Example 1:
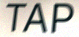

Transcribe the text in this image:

TAP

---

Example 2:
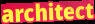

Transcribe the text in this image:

architect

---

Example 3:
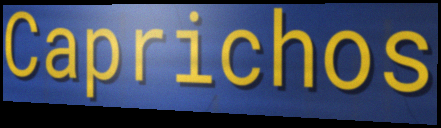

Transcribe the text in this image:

Caprichos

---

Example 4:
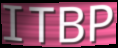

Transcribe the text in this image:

ITBP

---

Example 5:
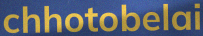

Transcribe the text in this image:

chhotobelai